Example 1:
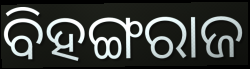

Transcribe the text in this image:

ବିହଙ୍ଗରାଜ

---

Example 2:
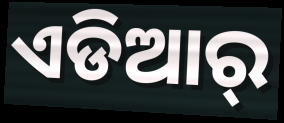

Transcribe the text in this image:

ଏଡିଆର୍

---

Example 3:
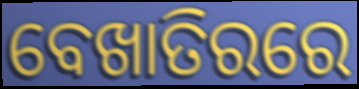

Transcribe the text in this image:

ବେଖାତିରରେ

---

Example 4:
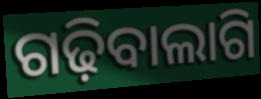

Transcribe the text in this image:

ଗଢ଼ିବାଲାଗି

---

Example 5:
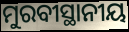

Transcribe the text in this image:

ମୁରବୀସ୍ଥାନୀୟ